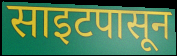
साइटपासून